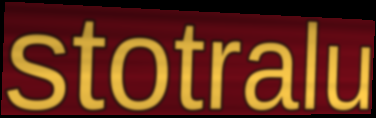
stotralu